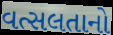
વત્સલતાનો